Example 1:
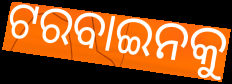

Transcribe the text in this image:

ଟରବାଇନକୁ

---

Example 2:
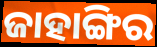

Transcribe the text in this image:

ଜାହାଙ୍ଗିର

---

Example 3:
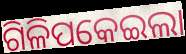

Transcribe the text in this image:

ଗିଳିପକେଇଲା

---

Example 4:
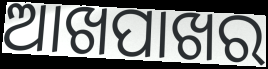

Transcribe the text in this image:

ଆଖପାଖର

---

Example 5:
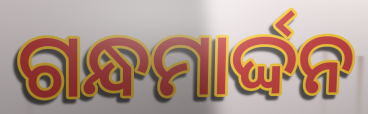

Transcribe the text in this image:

ଗନ୍ଧମାର୍ଦ୍ଦନ